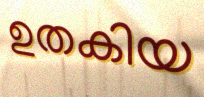
ഉതകിയ